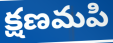
క్షణమపి